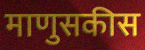
माणुसकीस